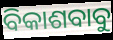
ବିକାଶବାବୁ